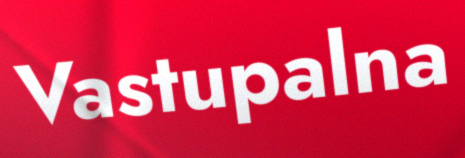
Vastupalna